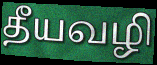
தீயவழி